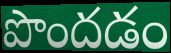
పొందడం